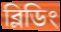
ব্লিডিং